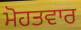
ਮੋਹਤਵਾਰ